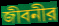
জীবনীর